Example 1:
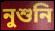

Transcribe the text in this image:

নুশুনি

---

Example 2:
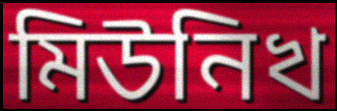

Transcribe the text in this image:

মিউনিখ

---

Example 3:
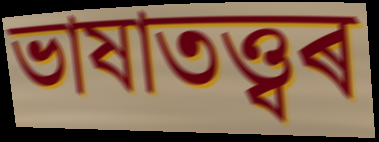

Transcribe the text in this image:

ভাষাতত্ত্বৰ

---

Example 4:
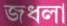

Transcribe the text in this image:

জধলা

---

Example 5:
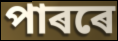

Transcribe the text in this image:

পাৰৰে